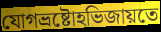
যোগভ্রষ্টোহভিজায়তে